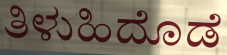
ತಿಳುಹಿದೊಡೆ